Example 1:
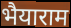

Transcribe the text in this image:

भैयाराम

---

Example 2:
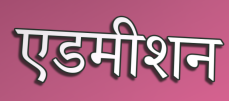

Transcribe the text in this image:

एडमीशन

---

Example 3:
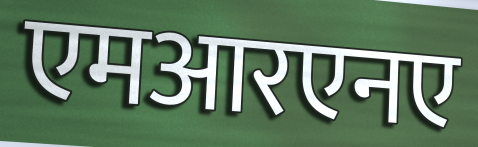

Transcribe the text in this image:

एमआरएनए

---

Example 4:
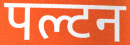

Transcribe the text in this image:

पल्टन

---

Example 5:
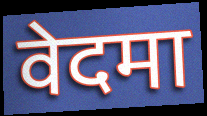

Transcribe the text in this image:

वेदमा